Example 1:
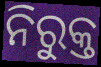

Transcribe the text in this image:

ନିରୁକ୍ତ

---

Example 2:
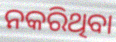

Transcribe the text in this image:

ନକରିଥିବା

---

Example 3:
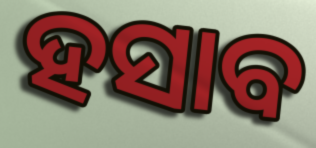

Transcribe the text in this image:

ହସାବ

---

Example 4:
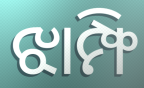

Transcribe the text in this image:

ଝାମ୍ଫି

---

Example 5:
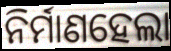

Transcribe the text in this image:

ନିର୍ମାଣହେଲା